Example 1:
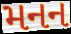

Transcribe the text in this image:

મનન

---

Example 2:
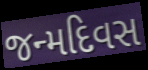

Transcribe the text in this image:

જન્મદિવસ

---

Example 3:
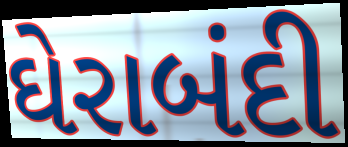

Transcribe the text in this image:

ઘેરાબંદી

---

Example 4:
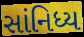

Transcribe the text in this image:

સાંનિધ્ય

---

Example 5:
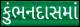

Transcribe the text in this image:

કુંભનદાસમાં